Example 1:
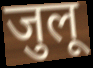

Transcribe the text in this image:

जुलू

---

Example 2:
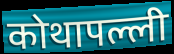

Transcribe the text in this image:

कोथापल्ली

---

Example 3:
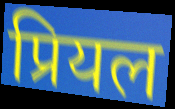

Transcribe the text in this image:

प्रियल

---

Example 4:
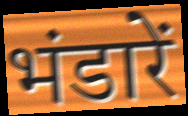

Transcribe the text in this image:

भंडारें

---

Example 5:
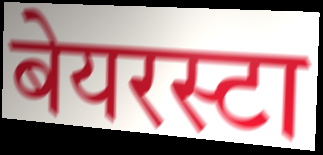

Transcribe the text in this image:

बेयरस्टा